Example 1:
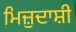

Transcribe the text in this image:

ਮਿਜ਼ੁਦਾਸ਼ੀ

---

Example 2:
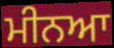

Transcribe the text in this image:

ਮੀਨਆ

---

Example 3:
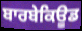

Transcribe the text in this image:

ਬਾਰਬੇਕਿਊਡ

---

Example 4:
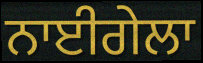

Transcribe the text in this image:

ਨਾਈਗੇਲਾ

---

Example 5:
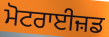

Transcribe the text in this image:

ਮੋਟਰਾਈਜ਼ਡ